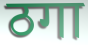
ठगा